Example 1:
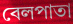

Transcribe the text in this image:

বেলপাতা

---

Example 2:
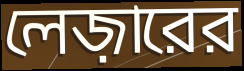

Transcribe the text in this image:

লেজ়ারের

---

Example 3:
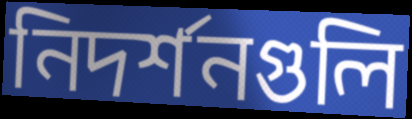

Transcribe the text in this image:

নিদর্শনগুলি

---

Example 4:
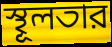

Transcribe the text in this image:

স্থূলতার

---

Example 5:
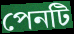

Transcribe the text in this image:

পেনটি